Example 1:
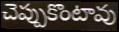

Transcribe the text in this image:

చెప్పుకొంటావు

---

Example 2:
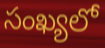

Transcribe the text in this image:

సంఖ్యలో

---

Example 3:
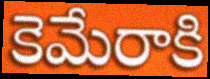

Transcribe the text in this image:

కెమేరాకి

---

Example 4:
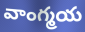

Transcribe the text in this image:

వాంగ్మయ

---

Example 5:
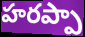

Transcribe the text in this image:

హరప్పా